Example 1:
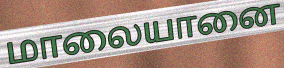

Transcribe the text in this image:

மாலையானை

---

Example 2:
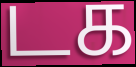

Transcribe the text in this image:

டக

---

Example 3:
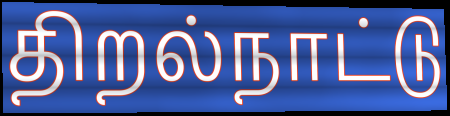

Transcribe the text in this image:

திறல்நாட்டு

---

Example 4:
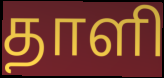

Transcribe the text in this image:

தாளி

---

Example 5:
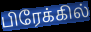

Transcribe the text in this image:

பிரேக்கில்